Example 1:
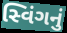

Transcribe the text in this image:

સ્વિંગનું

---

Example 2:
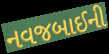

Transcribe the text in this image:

નવજબાઈની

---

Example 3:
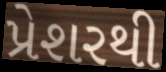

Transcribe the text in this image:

પ્રેશરથી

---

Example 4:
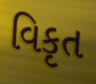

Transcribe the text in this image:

વિકૃત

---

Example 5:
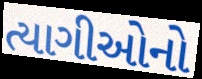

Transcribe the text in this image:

ત્યાગીઓનો